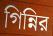
গিন্নির